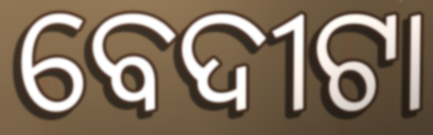
ବେଦୀଟା